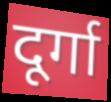
दूर्गा